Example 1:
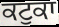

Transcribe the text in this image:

ਕਟੁਕਾ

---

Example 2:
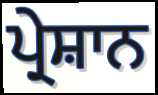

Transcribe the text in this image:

ਪ੍ਰੇਸ਼ਾਨ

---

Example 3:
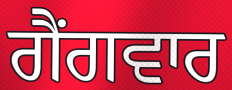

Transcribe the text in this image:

ਗੈਂਗਵਾਰ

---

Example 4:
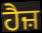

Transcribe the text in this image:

ਹੈਜ਼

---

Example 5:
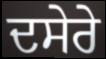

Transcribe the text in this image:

ਦਸੇਰੇ